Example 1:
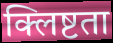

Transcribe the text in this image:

क्लिष्टता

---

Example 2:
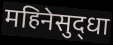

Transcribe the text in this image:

महिनेसुद्धा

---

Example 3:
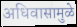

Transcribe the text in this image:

अधिवासामुळे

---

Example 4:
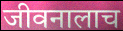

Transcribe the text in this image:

जीवनालाच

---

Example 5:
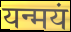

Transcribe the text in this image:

यन्मयं